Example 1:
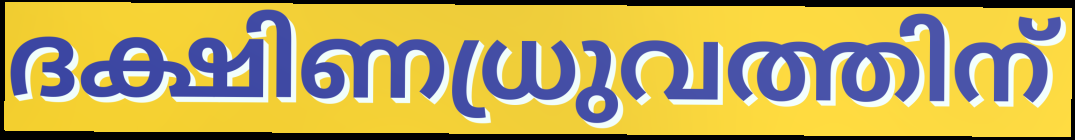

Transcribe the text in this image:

ദക്ഷിണധ്രുവത്തിന്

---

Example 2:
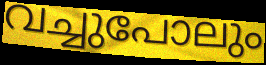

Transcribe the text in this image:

വച്ചുപോലും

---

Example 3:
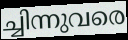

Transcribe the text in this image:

ച്ചിന്നുവരെ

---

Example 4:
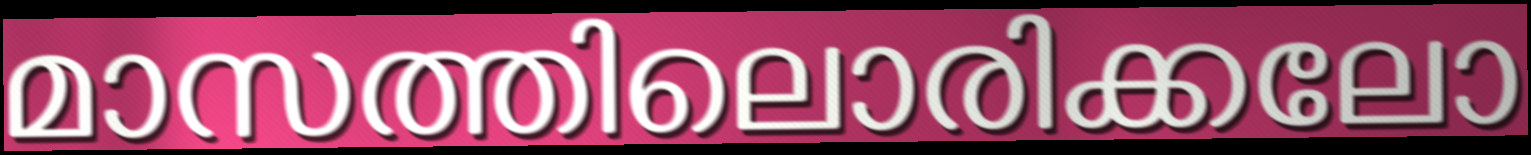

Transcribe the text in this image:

മാസത്തിലൊരിക്കലോ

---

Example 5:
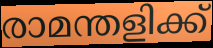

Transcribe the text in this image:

രാമന്തളിക്ക്